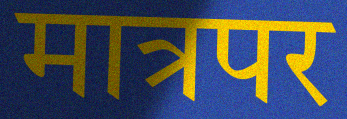
मात्रपर